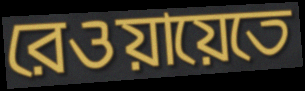
রেওয়ায়েতে